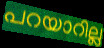
പറയാറില്ല